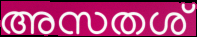
അസതശ്